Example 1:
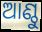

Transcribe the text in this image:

ଆଣ୍ଠୁ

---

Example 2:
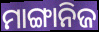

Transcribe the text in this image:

ମାଙ୍ଗାନିଜ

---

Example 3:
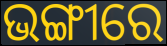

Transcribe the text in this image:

ଭଙ୍ଗୀରେ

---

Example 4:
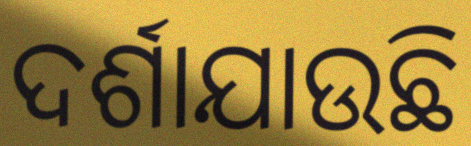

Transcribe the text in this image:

ଦର୍ଶାଯାଉଛି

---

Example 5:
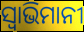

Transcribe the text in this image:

ସ୍ବାଭିମାନୀ